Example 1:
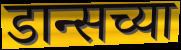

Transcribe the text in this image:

डान्सच्या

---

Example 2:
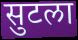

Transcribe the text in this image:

सुटला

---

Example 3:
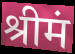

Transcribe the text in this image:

श्रीमं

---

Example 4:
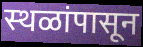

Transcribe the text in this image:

स्थळांपासून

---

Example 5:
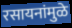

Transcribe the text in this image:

रसायनांमुळे